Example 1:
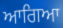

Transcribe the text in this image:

ਆਗਿਆ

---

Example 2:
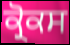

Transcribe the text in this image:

ਕ੍ਰੋਕਸ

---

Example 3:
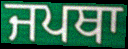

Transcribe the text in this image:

ਜਪਥਾ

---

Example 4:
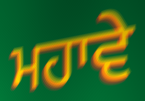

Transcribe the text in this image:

ਮਹਾਵੇ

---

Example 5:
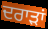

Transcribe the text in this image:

ਦਰਾੜਾਂ